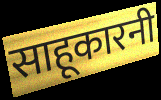
साहूकारनी